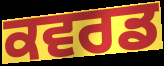
ਕਵਰਡ